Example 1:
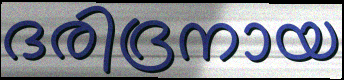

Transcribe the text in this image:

ദരിദ്രനായ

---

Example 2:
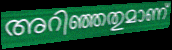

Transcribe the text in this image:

അറിഞ്ഞതുമാണ്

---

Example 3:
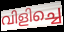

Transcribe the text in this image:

വിളിച്ചെ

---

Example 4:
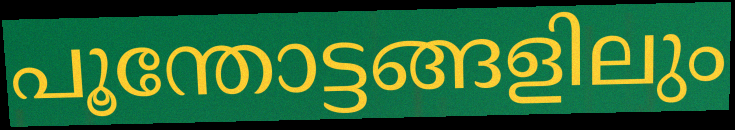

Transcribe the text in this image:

പൂന്തോട്ടങ്ങളിലും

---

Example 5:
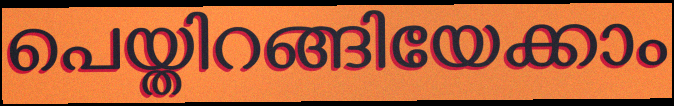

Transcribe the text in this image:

പെയ്തിറങ്ങിയേക്കാം